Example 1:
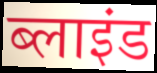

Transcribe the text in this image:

ब्लाइंड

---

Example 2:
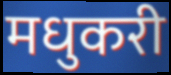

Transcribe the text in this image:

मधुकरी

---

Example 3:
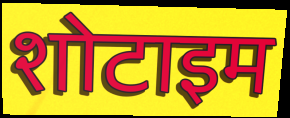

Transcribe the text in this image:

शोटाइम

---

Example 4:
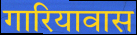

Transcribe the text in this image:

गारियावास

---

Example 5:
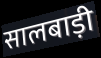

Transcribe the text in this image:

सालबाड़ी